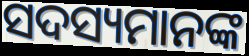
ସଦସ୍ୟମାନଙ୍କ